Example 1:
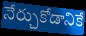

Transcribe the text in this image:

నేర్చుకోడానికే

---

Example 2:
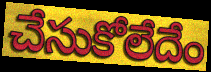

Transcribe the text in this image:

చేసుకోలేదేం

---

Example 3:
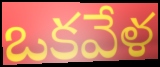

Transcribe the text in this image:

ఒకవేళ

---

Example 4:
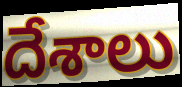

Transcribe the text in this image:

దేశాలు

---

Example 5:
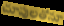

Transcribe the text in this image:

చూపులతోనూ